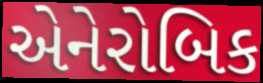
એનેરોબિક